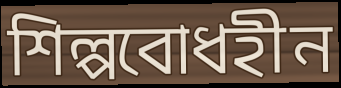
শিল্পবোধহীন